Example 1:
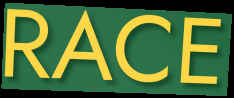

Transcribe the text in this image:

RACE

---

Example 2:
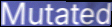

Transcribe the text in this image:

Mutated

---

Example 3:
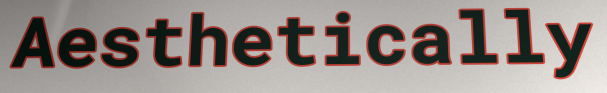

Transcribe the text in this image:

Aesthetically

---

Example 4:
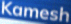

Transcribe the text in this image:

Kamesh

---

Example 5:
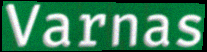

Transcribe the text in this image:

Varnas